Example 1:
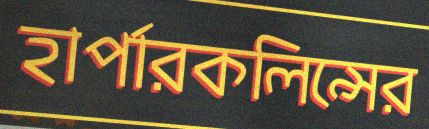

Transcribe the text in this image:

হার্পারকলিন্সের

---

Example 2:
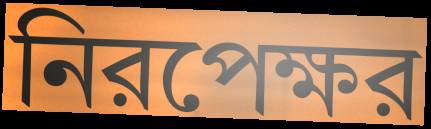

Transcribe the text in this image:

নিরপেক্ষর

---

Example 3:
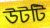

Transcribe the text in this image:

উটটি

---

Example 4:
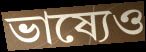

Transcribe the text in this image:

ভাষ্যেও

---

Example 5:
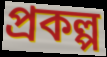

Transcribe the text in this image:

প্রকল্প